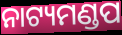
ନାଟ୍ୟମଣ୍ଡପ